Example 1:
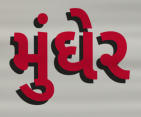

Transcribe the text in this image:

મુંઘેર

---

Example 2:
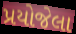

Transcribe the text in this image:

પ્રયોજેલા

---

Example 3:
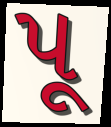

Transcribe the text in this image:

પૂ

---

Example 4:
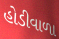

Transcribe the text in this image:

હોડીવાળા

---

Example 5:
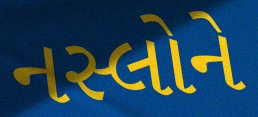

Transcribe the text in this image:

નસ્લોને